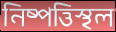
নিষ্পত্তিস্থল